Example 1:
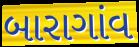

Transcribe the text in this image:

બારાગાંવ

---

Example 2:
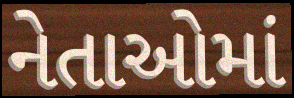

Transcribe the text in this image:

નેતાઓમાં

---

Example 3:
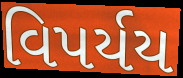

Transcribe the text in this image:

વિપર્યય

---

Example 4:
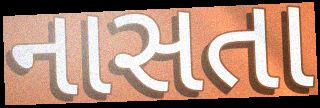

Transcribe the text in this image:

નાસતા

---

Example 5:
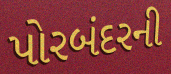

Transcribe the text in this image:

પોરબંદરની